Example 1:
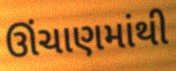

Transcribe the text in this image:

ઊંચાણમાંથી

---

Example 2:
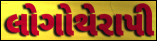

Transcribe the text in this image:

લોગોથેરાપી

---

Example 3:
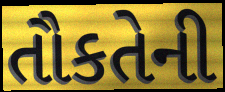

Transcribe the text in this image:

તૌકતેની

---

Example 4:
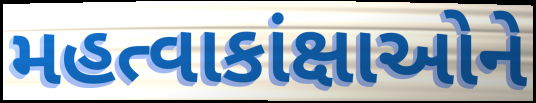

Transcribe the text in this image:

મહત્વાકાંક્ષાઓને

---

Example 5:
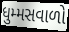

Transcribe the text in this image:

ધુમ્મસવાળો